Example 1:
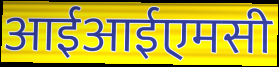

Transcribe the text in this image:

आईआईएमसी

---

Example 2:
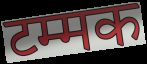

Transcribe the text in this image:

टम्मक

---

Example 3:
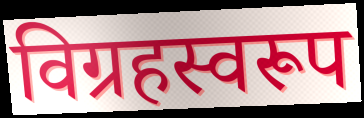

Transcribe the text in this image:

विग्रहस्वरूप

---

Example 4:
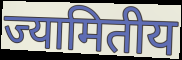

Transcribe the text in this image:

ज्यामितीय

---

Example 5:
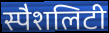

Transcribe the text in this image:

स्पैशलिटी